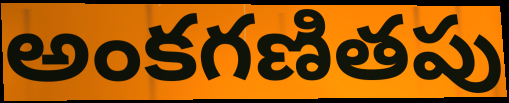
అంకగణితపు